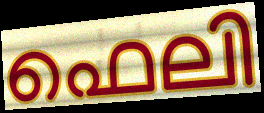
ഫെലി